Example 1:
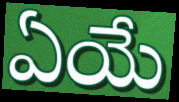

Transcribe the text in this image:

ఏయే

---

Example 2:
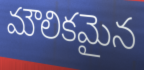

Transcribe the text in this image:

మౌలికమైన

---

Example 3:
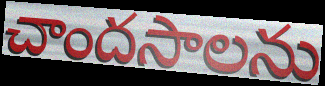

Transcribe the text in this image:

చాందసాలను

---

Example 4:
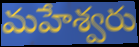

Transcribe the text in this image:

మహేశ్వరు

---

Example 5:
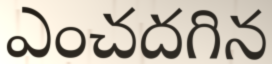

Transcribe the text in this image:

ఎంచదగిన